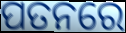
ପତନରେ